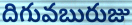
దిగువబురుజు